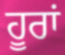
ਹੂਰਾਂ